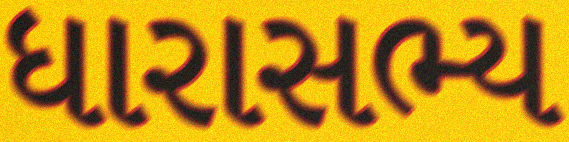
ધારાસભ્ય